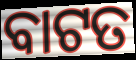
ବାଟତ